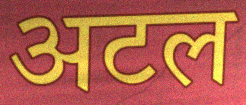
अटल